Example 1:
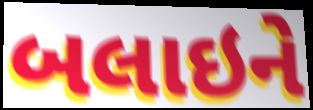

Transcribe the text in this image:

બલાઇને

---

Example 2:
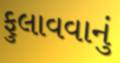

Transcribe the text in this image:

ફુલાવવાનું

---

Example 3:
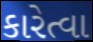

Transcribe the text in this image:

કારેત્વા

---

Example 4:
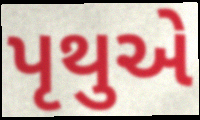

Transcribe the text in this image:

પૃથુએ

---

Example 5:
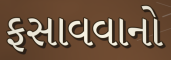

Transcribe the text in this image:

ફસાવવાનો